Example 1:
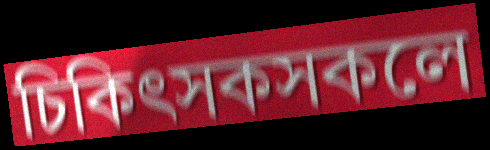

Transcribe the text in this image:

চিকিৎসকসকলে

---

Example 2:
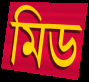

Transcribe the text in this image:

মিড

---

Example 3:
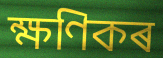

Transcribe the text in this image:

ক্ষণিকৰ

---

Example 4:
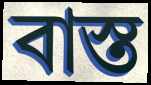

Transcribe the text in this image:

বাস্ত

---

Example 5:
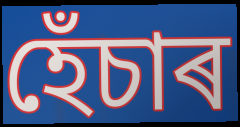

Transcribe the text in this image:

হেঁচাৰ